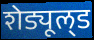
शेड्यूल्ड